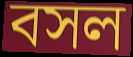
বসল